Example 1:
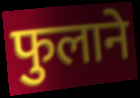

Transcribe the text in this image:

फुलाने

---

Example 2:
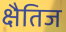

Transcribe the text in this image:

क्षैतिज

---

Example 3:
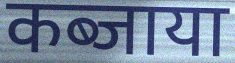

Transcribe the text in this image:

कब्जाया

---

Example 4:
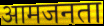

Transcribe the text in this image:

आमजनता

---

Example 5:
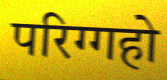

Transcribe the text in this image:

परिग्गहो